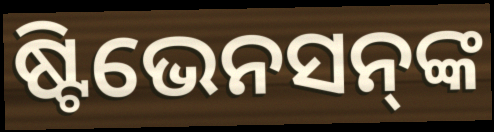
ଷ୍ଟିଭେନସନ୍‍ଙ୍କ